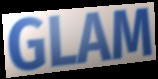
GLAM